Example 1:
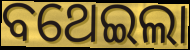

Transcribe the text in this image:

ବଥେଇଲା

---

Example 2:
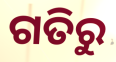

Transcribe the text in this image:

ଗତିରୁ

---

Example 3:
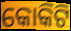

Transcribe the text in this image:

କୋକିଟି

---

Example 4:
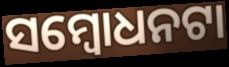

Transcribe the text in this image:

ସମ୍ବୋଧନଟା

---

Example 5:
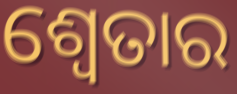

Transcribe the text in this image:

ଶ୍ୱେତାର